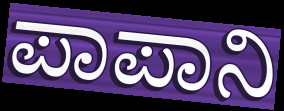
ಪಾಪಾನಿ